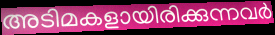
അടിമകളായിരിക്കുന്നവർ